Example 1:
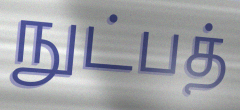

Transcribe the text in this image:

நுட்பத்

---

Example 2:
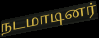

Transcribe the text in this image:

நடமாடினர்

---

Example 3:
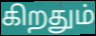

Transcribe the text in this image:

கிறதும்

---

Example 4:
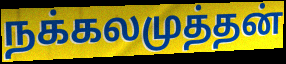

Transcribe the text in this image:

நக்கலமுத்தன்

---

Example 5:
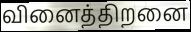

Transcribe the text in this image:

வினைத்திறனை